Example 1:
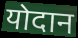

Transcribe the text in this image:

योदान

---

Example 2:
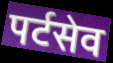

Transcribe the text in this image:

पर्टसेव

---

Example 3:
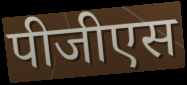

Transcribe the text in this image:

पीजीएस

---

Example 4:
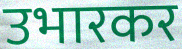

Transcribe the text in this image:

उभारकर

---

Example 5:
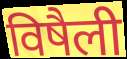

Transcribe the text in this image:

विषैली